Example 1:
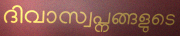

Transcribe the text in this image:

ദിവാസ്വപ്നങ്ങളുടെ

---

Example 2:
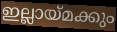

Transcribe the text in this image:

ഇല്ലായ്മക്കും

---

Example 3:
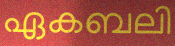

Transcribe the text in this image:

ഏകബലി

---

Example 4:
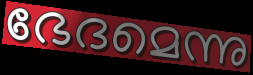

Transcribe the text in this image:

ഭേദമെന്നു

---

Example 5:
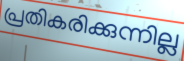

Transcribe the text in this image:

പ്രതികരിക്കുന്നില്ല